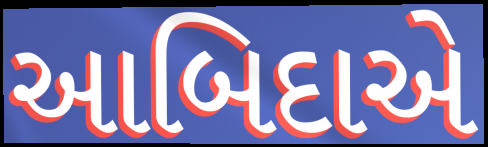
આબિદાએ